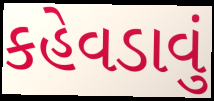
કહેવડાવું